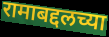
रामाबद्दलच्या